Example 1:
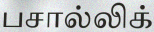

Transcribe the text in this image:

பசால்லிக்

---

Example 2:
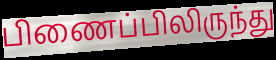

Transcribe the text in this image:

பிணைப்பிலிருந்து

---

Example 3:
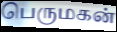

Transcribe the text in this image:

பெருமகன்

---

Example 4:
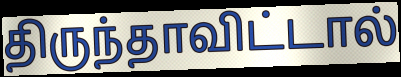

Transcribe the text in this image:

திருந்தாவிட்டால்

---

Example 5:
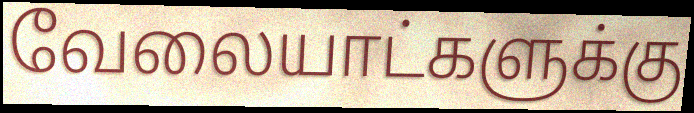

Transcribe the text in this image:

வேலையாட்களுக்கு